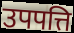
उपपत्ति